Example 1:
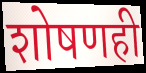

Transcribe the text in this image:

शोषणही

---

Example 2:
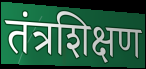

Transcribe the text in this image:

तंत्रशिक्षण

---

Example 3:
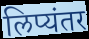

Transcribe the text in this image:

लिप्यंतर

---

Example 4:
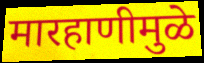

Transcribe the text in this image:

मारहाणीमुळे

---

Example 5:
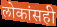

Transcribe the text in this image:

लोकांसही